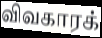
விவகாரக்